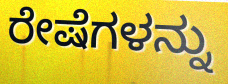
ರೇಷೆಗಳನ್ನು